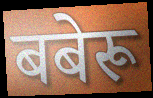
बबेरू